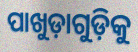
ପାଖୁଡ଼ାଗୁଡ଼ିକୁ